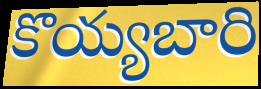
కొయ్యబారి